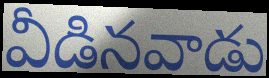
వీడినవాడు